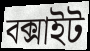
বক্সাইট